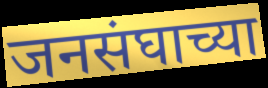
जनसंघाच्या